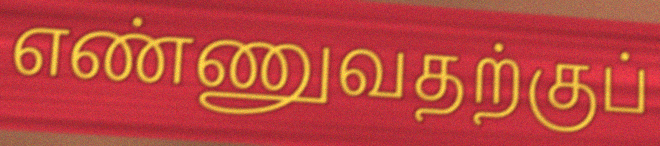
எண்ணுவதற்குப்